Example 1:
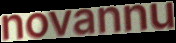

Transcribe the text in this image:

novannu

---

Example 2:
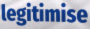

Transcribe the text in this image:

legitimise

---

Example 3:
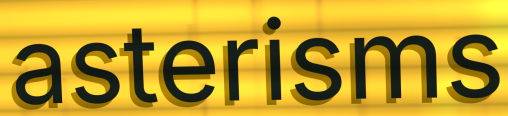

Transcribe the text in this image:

asterisms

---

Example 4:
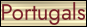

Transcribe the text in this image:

Portugals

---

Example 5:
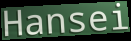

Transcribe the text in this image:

Hansei